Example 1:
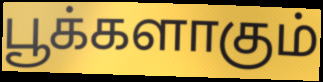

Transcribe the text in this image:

பூக்களாகும்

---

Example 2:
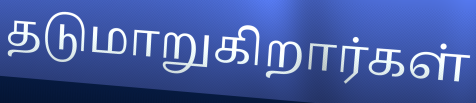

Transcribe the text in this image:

தடுமாறுகிறார்கள்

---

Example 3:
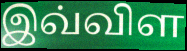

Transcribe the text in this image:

இவ்விள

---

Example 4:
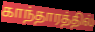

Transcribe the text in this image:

காந்தாரத்தில்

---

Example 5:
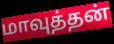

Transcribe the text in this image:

மாவுத்தன்